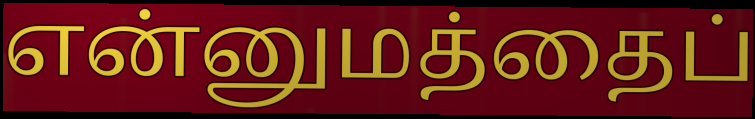
என்னுமத்தைப்